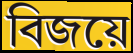
বিজয়ে